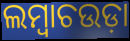
ଲମ୍ବାଚଉଡ଼ା